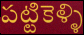
పట్టికెళ్ళి